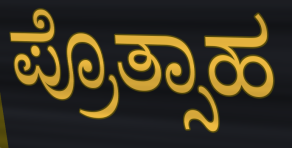
ಪ್ರೊತ್ಸಾಹ